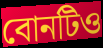
বোনটিও